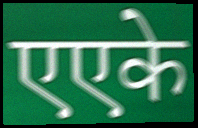
एएके